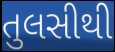
તુલસીથી